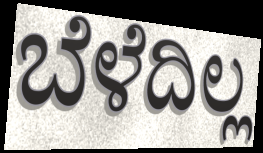
ಬೆಳೆದಿಲ್ಲ